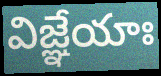
విజ్ఞేయాః